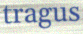
tragus